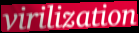
virilization